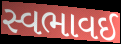
સ્વભાવઈ